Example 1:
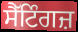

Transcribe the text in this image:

ਸੈੱਟਿੰਗਜ਼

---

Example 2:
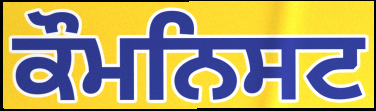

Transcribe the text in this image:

ਕੌਮਨਿਸਟ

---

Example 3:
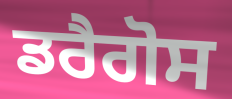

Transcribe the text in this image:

ਡਰੈਗੋਸ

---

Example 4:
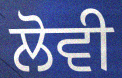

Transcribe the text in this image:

ਲੋਵੀ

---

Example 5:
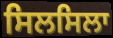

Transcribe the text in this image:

ਸਿਲਸਿਲਾ